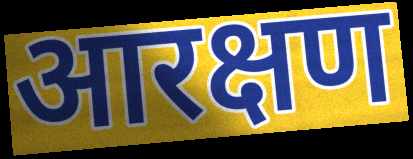
आरक्षण